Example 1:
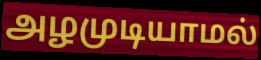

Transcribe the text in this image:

அழமுடியாமல்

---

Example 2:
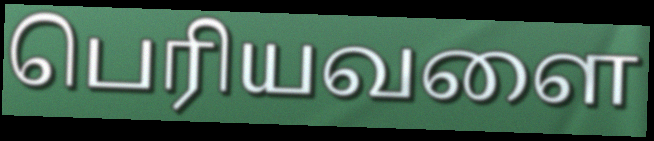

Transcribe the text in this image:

பெரியவளை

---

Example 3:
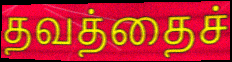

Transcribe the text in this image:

தவத்தைச்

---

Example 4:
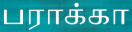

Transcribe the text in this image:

பராக்கா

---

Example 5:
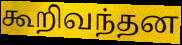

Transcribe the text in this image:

கூறிவந்தன